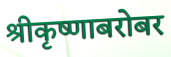
श्रीकृष्णाबरोबर